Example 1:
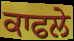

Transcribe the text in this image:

ਕਾਫਲੇ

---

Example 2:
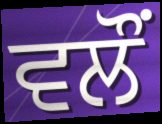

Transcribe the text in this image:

ਵਲੌੰ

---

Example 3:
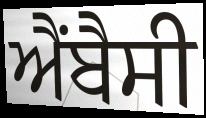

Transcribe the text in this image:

ਐਂਬੈਸੀ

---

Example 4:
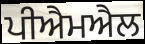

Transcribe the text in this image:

ਪੀਐਮਐਲ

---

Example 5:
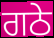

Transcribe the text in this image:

ਗਠੇ